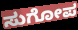
ಸುಗೋಪ